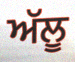
ਅੱਲੂ